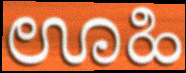
ಊಹಿ